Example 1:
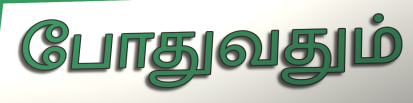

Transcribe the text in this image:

போதுவதும்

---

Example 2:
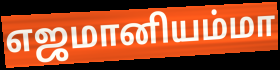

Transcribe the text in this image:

எஜமானியம்மா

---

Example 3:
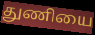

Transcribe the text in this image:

துணியை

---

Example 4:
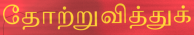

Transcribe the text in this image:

தோற்றுவித்துக்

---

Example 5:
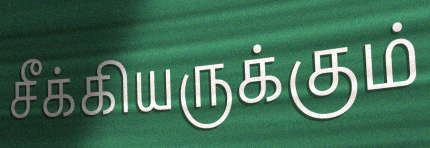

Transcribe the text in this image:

சீக்கியருக்கும்